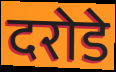
दरोडे